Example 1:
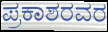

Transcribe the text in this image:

ಪ್ರಕಾಶರವರ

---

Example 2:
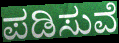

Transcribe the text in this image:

ಪಡಿಸುವೆ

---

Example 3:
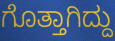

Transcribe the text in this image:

ಗೊತ್ತಾಗಿದ್ದು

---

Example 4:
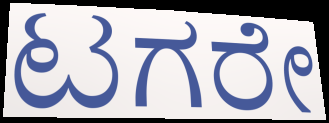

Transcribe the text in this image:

ಟಗರೇ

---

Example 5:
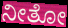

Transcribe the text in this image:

ನೀತೋ